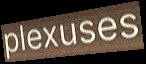
plexuses